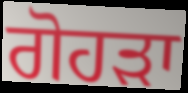
ਗੋਹੜਾ